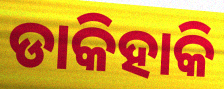
ଡାକିହାକି